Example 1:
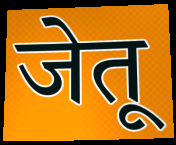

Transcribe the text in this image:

जेतू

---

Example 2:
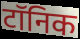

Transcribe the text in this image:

टॉनिक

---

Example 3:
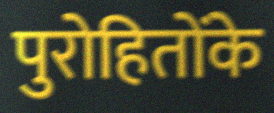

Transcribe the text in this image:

पुरोहितोंके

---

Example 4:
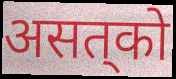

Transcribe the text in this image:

असत्‌को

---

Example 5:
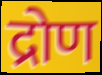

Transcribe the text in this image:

द्रोण